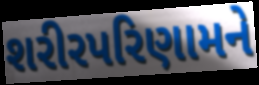
શરીરપરિણામને